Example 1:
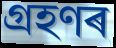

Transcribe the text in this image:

গ্ৰহণৰ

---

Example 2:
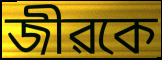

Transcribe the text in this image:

জীৱকে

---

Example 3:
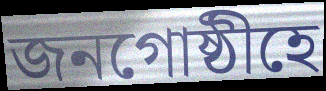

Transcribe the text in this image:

জনগোষ্ঠীহে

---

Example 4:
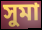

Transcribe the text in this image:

সুমা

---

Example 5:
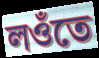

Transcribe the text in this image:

লওঁতে